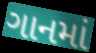
ગાનમાં